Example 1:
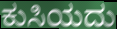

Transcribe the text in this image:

ಕುಸಿಯದು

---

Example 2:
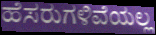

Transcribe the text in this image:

ಹೆಸರುಗಳಿವೆಯಲ್ಲ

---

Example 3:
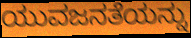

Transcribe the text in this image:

ಯುವಜನತೆಯನ್ನು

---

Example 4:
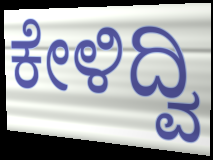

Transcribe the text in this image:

ಕೇಳಿದ್ವಿ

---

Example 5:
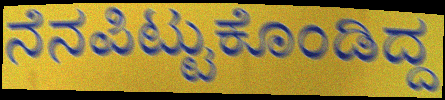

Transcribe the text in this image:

ನೆನಪಿಟ್ಟುಕೊಂಡಿದ್ದ